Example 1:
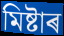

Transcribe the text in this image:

মিষ্টাৰ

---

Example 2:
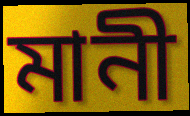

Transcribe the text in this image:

মানী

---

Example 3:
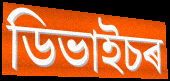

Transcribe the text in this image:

ডিভাইচৰ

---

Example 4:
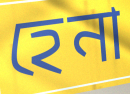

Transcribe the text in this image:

হেনা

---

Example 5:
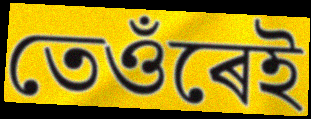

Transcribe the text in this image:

তেওঁৰেই